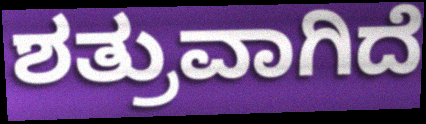
ಶತ್ರುವಾಗಿದೆ